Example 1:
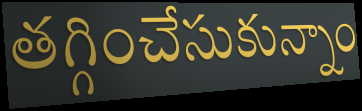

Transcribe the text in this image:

తగ్గించేసుకున్నాం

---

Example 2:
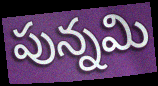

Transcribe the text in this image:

పున్నమి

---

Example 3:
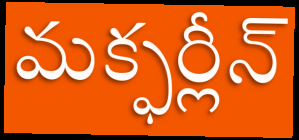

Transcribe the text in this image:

మక్ఫర్లీన్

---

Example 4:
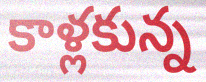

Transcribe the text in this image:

కాళ్లకున్న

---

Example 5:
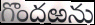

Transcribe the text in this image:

గొందఱను